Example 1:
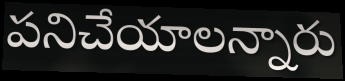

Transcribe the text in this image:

పనిచేయాలన్నారు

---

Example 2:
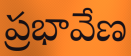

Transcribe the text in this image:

ప్రభావేణ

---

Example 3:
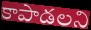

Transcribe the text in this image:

కాపాడలని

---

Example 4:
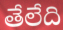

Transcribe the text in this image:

తేలేది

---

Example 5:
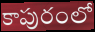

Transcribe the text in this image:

కాపురంలో